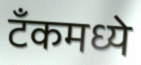
टॅंकमध्ये